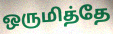
ஒருமித்தே